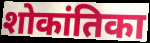
शोकांतिका